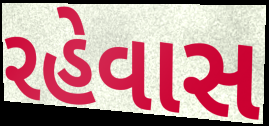
રહેવાસ